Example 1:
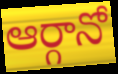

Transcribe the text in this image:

ఆర్గానో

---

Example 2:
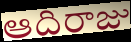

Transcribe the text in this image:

ఆదిరాజు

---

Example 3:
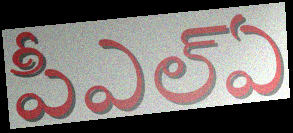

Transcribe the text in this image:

పీఎల్ఏ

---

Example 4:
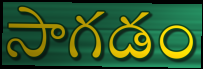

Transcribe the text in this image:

సాగడం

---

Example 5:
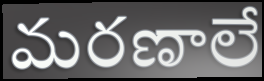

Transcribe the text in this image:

మరణాలే